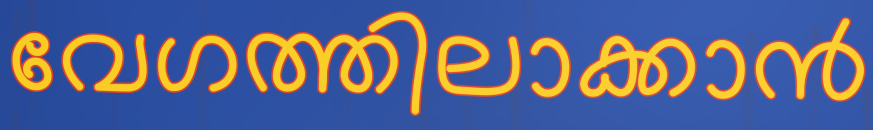
വേഗത്തിലാക്കാൻ